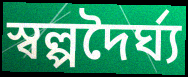
স্বল্পদৈর্ঘ্য